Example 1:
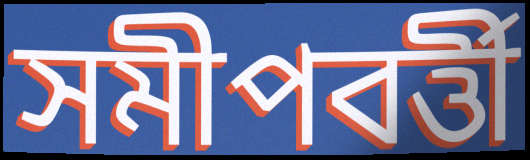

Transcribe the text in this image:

সমীপবর্ত্তী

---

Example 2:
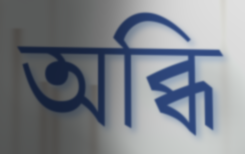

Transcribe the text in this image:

অব্ধি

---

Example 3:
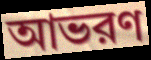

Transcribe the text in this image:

আভরণ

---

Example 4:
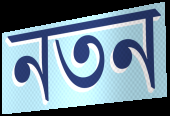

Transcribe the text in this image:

নতন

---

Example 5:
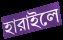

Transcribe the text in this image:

হারাইলে